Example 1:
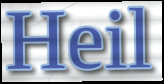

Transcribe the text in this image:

Heil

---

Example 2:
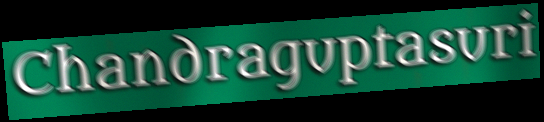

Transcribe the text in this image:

Chandraguptasuri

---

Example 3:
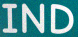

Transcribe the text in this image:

IND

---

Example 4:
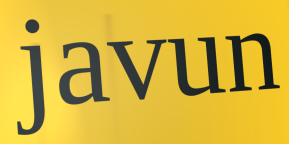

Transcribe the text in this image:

javun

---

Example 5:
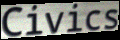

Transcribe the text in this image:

Civics